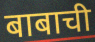
बाबाची